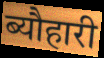
ब्यौहारी